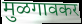
मुळगावकर